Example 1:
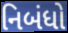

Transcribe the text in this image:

નિબંધો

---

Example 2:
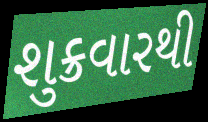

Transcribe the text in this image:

શુક્રવારથી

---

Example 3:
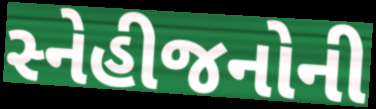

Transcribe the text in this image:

સ્નેહીજનોની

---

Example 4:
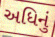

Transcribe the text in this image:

અધિનું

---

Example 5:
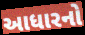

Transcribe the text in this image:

આધારનો